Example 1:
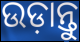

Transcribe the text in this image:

ଉଡ଼ାନ୍ତୁ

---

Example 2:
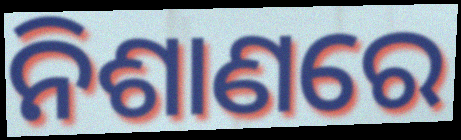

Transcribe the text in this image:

ନିଶାଣରେ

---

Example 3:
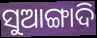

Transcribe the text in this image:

ସୁଆଙ୍ଗାଦି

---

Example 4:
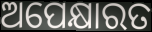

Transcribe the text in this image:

ଅପେକ୍ଷାରତ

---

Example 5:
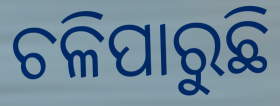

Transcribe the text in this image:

ଚଳିପାରୁଛି